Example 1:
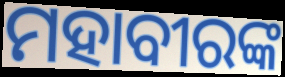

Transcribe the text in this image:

ମହାବୀରଙ୍କ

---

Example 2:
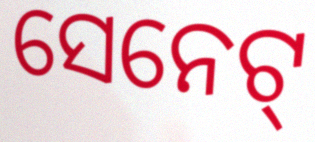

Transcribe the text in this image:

ସେନେଟ୍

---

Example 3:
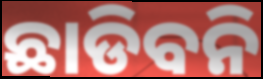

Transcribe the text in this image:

ଛାଡିବନି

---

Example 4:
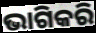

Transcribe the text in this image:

ଭାଗିକରି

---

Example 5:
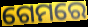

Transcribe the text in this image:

ଗେମରେ